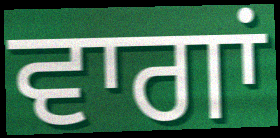
ਵਾਗਾਂ